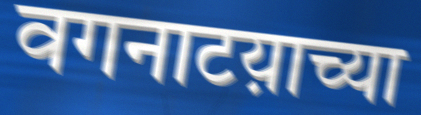
वगनाटय़ाच्या